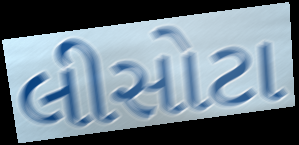
લીસોટા